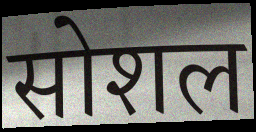
सोशल